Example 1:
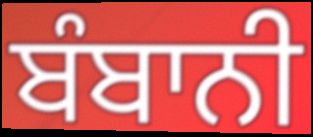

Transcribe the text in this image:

ਬੰਬਾਨੀ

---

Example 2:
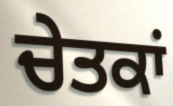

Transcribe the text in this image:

ਚੇਤਕਾਂ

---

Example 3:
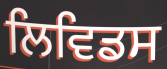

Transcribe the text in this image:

ਲਿਵਿਡਸ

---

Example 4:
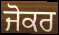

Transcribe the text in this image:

ਜੋਕਰ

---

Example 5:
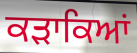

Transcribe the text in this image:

ਕੜਾਕਿਆਂ